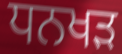
ਧਨਖਡ਼